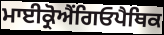
ਮਾਈਕ੍ਰੋਐਂਗਿਓਪੈਥਿਕ